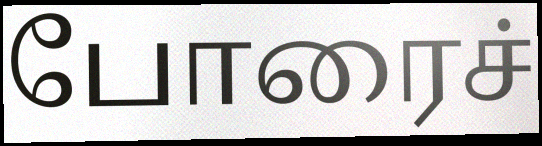
போரைச்